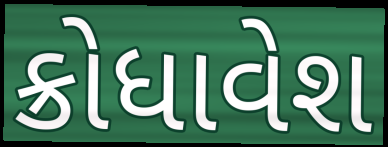
ક્રોધાવેશ